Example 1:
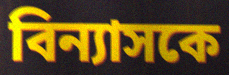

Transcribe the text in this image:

বিন্যাসকে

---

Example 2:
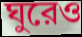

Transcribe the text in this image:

ঘুরেও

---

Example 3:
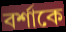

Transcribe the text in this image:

বর্শাকে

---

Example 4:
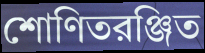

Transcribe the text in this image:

শোণিতরঞ্জিত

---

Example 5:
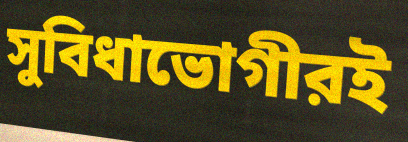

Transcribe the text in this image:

সুবিধাভোগীরই